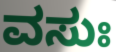
ವಸುಃ